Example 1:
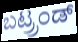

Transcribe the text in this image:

ಬಟ್ರ್ರಂಡ್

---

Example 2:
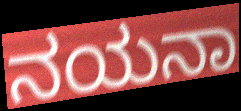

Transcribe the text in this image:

ನಯನಾ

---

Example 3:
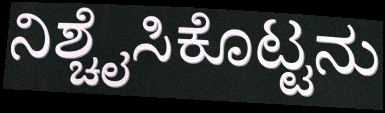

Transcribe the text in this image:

ನಿಶ್ಚೈಸಿಕೊಟ್ಟನು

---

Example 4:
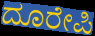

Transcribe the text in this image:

ದೂರೇಪಿ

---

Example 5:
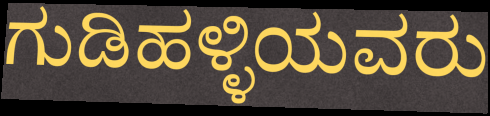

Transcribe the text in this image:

ಗುಡಿಹಳ್ಳಿಯವರು